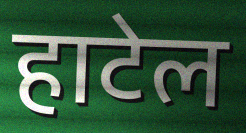
हाटेल